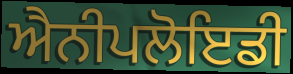
ਐਨੀਪਲੋਇਡੀ